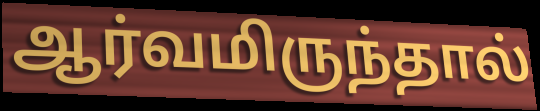
ஆர்வமிருந்தால்